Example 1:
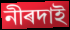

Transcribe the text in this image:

নীৰদাই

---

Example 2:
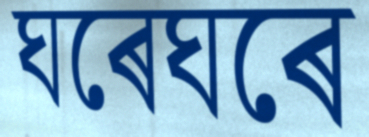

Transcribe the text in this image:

ঘৰেঘৰে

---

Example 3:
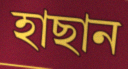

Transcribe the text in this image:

হাছান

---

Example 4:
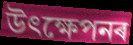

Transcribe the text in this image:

উৎক্ষেপনৰ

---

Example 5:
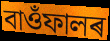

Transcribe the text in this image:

বাওঁফালৰ